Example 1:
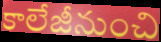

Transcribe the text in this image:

కాలేజీనుంచి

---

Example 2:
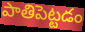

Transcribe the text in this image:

పాతిపెట్టడం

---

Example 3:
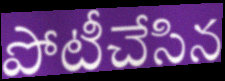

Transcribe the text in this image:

పోటీచేసిన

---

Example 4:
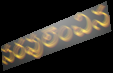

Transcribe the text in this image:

సరవులెంచిన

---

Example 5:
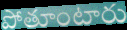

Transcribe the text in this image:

పోతూంటారు